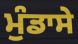
ਮੁੰਡਾਸੇ